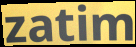
zatim